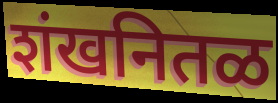
शंखनितळ